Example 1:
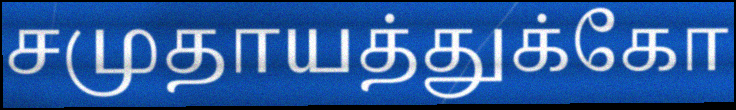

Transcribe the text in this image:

சமுதாயத்துக்கோ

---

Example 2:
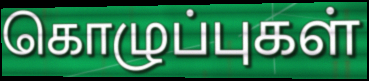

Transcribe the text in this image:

கொழுப்புகள்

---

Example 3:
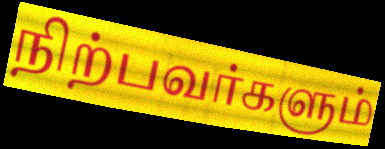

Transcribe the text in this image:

நிற்பவர்களும்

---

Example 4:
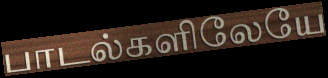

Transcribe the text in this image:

பாடல்களிலேயே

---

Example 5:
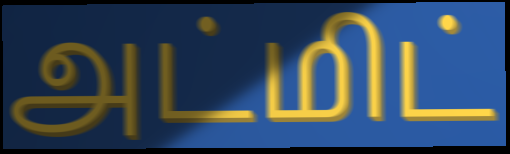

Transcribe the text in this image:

அட்மிட்